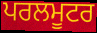
ਪਰਲਮੂਟਰ